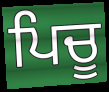
ਪਿਚੂ